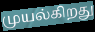
முயல்கிறது